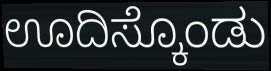
ಊದಿಸ್ಕೊಂಡು